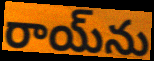
రాయ్‌ను